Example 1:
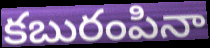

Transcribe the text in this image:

కబురంపినా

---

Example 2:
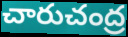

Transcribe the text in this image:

చారుచంద్ర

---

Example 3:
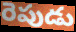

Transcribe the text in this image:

రెపుడు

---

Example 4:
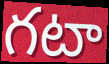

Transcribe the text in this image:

గటా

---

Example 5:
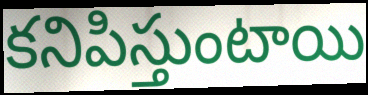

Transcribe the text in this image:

కనిపిస్తుంటాయి